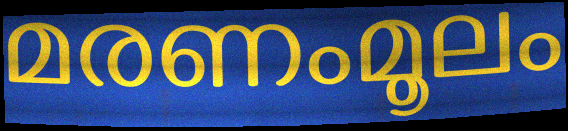
മരണംമൂലം